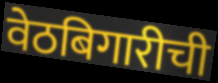
वेठबिगारीची